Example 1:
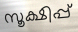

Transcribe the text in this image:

സൂക്ഷിപ്പ്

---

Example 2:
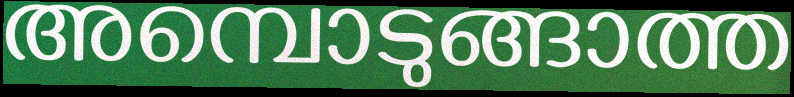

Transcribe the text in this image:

അമ്പൊടുങ്ങാത്ത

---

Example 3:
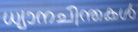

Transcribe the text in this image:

ധ്യാനചിന്തകൾ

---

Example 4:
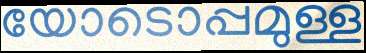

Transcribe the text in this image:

യോടൊപ്പമുള്ള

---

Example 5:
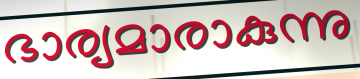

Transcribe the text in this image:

ഭാര്യമാരാകുന്നു